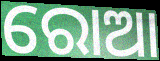
ରୋଆ